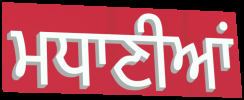
ਮਧਾਣੀਆਂ